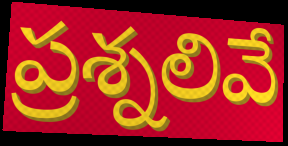
ప్రశ్నలివే